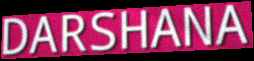
DARSHANA